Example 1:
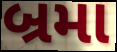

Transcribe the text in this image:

બ્રમા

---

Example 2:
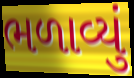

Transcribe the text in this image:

ભળાવ્યું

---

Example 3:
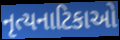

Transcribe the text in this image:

નૃત્યનાટિકાઓ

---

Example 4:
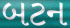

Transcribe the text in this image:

બટન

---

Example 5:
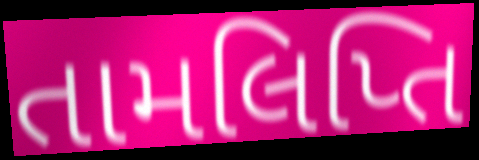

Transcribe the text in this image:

તામલિપ્તિ